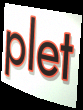
plet